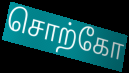
சொற்கோ